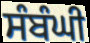
ਸੰਬੰਘੀ